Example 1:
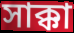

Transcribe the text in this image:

সাক্কা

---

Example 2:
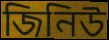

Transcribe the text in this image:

জিনিউ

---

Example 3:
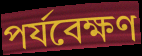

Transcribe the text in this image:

পর্যবেক্ষণ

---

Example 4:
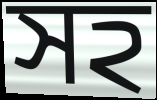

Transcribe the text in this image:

সহ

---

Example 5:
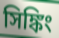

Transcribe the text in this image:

সিঙ্কিং